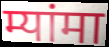
म्यांमा